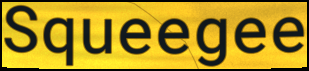
Squeegee